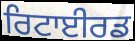
ਰਿਟਾਈਰਡ